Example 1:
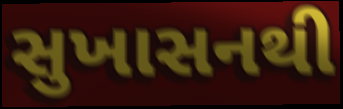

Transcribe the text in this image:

સુખાસનથી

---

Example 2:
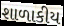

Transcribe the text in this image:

શાળાકીય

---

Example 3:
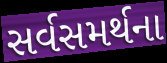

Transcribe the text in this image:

સર્વસમર્થના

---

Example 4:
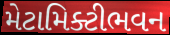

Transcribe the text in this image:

મેટામિક્ટીભવન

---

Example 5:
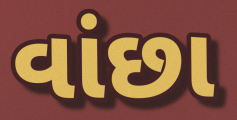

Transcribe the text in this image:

વાંછા